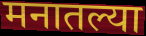
मनातल्या